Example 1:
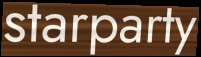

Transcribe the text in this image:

starparty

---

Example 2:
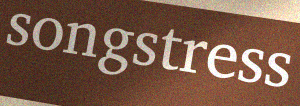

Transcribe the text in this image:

songstress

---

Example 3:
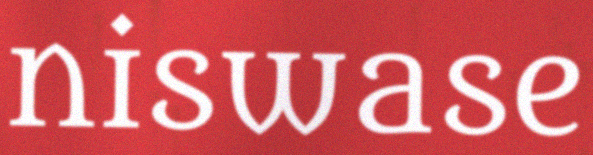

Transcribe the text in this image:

niswase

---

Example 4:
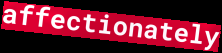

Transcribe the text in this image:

affectionately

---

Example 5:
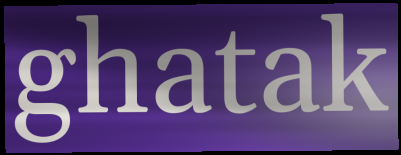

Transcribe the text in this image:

ghatak